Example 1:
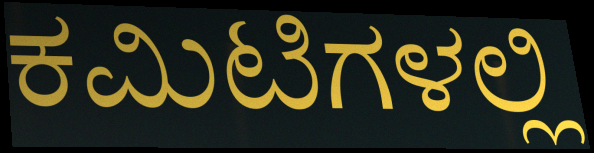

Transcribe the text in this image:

ಕಮಿಟಿಗಳಲ್ಲಿ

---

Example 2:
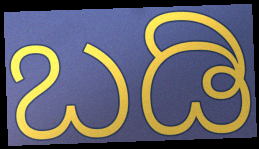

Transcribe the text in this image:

ಬಡಿ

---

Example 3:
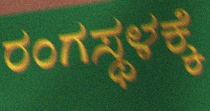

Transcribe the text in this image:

ರಂಗಸ್ಥಳಕ್ಕೆ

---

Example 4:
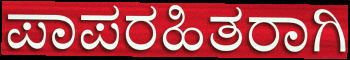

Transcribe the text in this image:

ಪಾಪರಹಿತರಾಗಿ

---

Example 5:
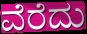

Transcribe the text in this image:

ವೆರೆದು